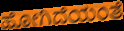
ಹೋಗಿದೆಯಂತೆ